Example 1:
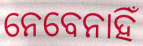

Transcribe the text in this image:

ନେବେନାହିଁ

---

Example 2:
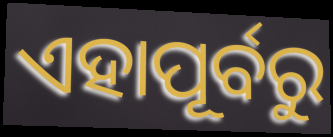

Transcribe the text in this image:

ଏହାପୂର୍ବରୁ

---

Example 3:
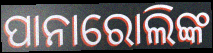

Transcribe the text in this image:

ପାନାରୋଲିଙ୍କ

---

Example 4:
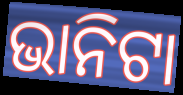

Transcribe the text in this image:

ଭାନିଟା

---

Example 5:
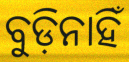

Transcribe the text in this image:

ବୁଡ଼ିନାହିଁ